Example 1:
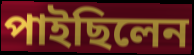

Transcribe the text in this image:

পাইছিলেন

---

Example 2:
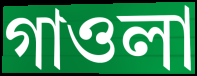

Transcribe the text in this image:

গাওলা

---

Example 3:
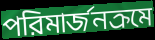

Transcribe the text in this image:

পরিমার্জনক্রমে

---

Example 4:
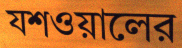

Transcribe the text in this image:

যশওয়ালের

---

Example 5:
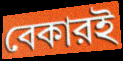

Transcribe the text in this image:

বেকারই